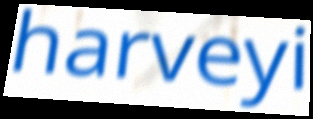
harveyi